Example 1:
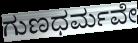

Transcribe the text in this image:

ಗುಣಧರ್ಮವೇ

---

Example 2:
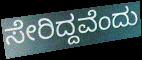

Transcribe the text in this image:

ಸೇರಿದ್ದವೆಂದು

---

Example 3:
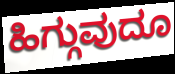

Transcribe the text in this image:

ಹಿಗ್ಗುವುದೂ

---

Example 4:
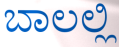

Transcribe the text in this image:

ಬಾಲಲ್ಲಿ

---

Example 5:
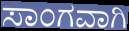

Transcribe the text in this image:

ಸಾಂಗವಾಗಿ